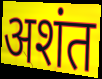
अशंत